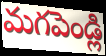
మగపెండ్లి